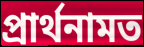
প্রার্থনামত